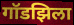
गॉडझिला